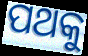
ପଥକୁ